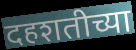
दहशतीच्या